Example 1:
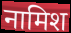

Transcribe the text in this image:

नामिश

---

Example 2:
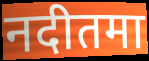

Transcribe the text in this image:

नदीतमा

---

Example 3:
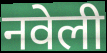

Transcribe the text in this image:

नवेली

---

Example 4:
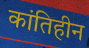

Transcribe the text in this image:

कांतिहीन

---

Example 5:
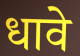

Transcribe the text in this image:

धावे